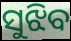
ସୁଝିବ